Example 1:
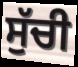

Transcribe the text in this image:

ਸੁੱਚੀ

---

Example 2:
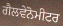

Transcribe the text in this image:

ਗੈਲਵੇਨੋਮੀਟਰ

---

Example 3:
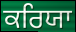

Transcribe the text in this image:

ਕਰਿਯਾ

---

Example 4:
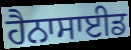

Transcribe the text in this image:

ਹੈਨਾਸਾਈਡ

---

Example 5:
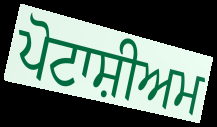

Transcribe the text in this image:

ਪੋਟਾਸ਼ੀਅਮ